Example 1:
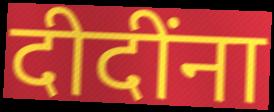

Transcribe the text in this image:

दीदींना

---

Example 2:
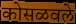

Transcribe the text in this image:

कोसळवले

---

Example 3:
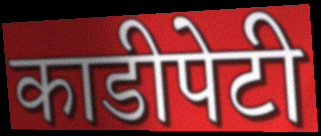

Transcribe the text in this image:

काडीपेटी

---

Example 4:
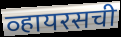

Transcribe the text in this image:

व्हायरसची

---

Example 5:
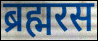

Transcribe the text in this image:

ब्रह्मरस